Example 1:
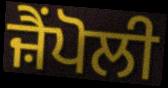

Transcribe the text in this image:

ਜ਼ੈਂਪੋਲੀ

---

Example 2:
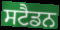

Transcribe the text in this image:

ਸਟੈਡਨ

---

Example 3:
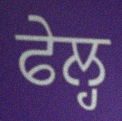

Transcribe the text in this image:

ਫੇਲ੍ਹ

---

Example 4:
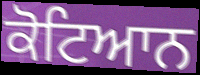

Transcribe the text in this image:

ਕੋਟਿਆਨ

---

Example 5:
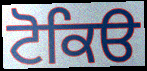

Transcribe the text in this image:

ਟੋਕਿੳ